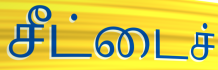
சீட்டைச்